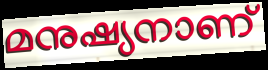
മനുഷ്യനാണ്